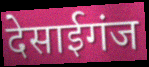
देसाईगंज